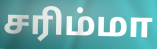
சரிம்மா